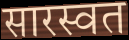
सारस्वत